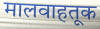
मालवाहतूक